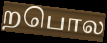
றபொல